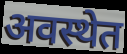
अवस्थेत